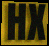
HX